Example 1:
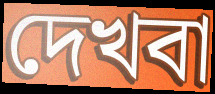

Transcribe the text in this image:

দেখবা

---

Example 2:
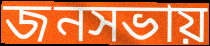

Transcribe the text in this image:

জনসভায়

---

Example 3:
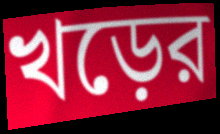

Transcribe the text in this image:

খড়ের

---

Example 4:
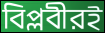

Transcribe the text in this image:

বিপ্লবীরই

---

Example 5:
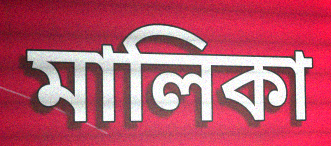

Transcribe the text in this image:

মালিকা